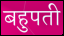
बहुपती